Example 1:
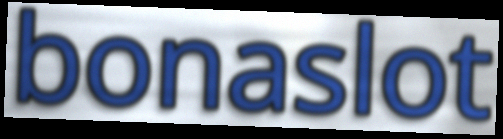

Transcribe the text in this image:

bonaslot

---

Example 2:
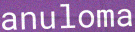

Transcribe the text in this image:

anuloma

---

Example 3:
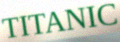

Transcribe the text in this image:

TITANIC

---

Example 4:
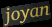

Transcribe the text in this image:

joyan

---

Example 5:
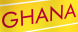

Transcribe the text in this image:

GHANA